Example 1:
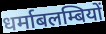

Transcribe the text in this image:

धर्माबलम्बियों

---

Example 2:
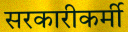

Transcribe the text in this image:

सरकारीकर्मी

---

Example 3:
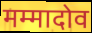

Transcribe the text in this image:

मम्मादोव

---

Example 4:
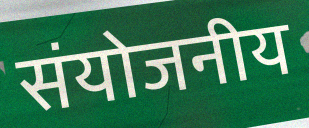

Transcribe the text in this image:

संयोजनीय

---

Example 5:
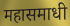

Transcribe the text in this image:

महासमाधी